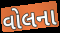
વોલના